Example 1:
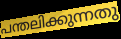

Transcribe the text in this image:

പന്തലിക്കുന്നതു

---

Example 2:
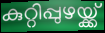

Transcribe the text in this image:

കുറ്റിപ്പുഴയ്ക്ക്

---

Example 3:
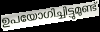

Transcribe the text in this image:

ഉപയോഗിച്ചിട്ടുമുണ്ട്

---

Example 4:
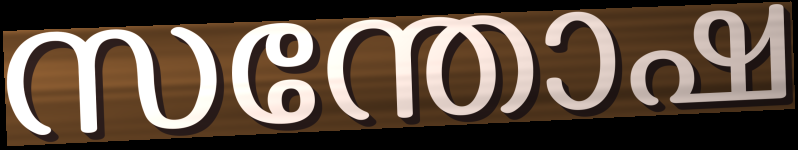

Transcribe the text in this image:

സന്തോഷ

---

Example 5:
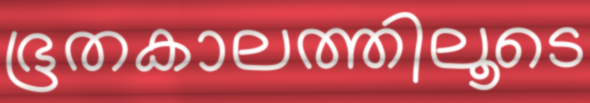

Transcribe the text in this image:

ഭൂതകാലത്തിലൂടെ